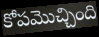
కోపమొచ్చింది